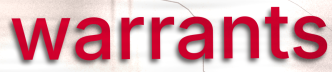
warrants